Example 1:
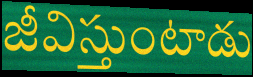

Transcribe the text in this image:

జీవిస్తుంటాడు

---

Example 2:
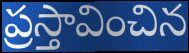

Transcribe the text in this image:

ప్రస్తావించిన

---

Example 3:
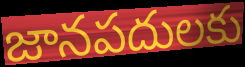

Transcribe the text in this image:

జానపదులకు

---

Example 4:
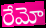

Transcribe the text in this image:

రేమో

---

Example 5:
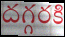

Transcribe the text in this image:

దగ్గరకి